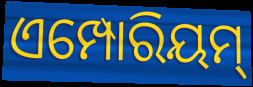
ଏମ୍ପୋରିୟମ୍